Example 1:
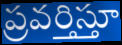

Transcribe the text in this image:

ప్రవర్తిస్తూ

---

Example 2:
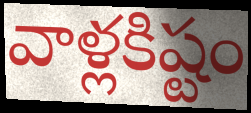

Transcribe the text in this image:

వాళ్లకిష్టం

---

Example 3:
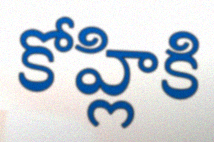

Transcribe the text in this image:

కోహ్లికి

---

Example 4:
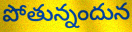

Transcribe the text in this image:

పోతున్నందున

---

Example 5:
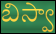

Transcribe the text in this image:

బిస్వా